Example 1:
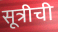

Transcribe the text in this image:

सूत्रीची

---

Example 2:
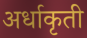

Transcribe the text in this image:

अर्धाकृती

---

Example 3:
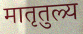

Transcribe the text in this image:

मातृतुल्य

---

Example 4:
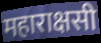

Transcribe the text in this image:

महाराक्षसी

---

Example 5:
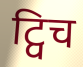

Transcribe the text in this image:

ट्विच